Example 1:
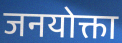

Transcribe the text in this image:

जनयोक्ता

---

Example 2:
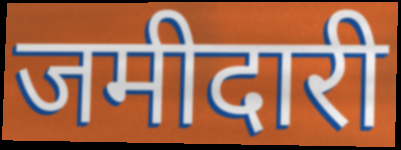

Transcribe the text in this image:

जमीदारी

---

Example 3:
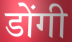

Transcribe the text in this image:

डोंगी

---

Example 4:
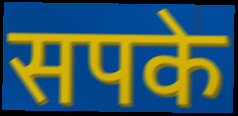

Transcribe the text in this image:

सपके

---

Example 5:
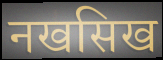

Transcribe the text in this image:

नखसिख